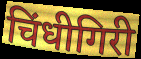
चिंधीगिरी